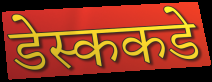
डेस्ककडे